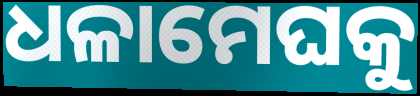
ଧଳାମେଘକୁ